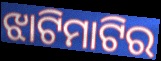
ଝାଟିମାଟିର